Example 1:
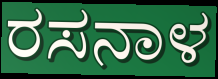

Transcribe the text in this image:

ರಸನಾಳ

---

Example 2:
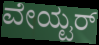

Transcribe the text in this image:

ವೇಯ್ಟರ್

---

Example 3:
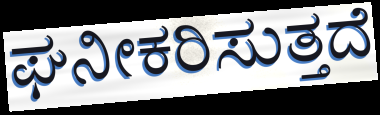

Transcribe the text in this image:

ಘನೀಕರಿಸುತ್ತದೆ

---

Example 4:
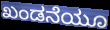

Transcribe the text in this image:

ಖಂಡನೆಯೂ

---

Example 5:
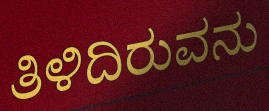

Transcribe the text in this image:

ತಿಳಿದಿರುವನು